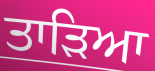
ਤਾੜਿਆ